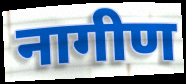
नागीण